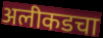
अलीकडचा